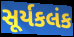
સૂર્યકલંક